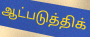
ஆட்படுத்திக்